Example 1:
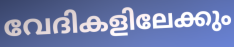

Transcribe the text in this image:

വേദികളിലേക്കും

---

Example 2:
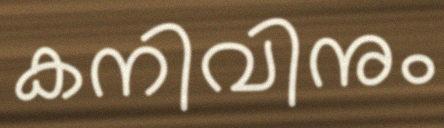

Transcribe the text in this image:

കനിവിനും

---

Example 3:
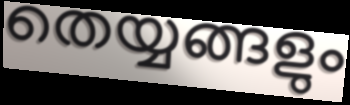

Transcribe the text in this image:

തെയ്യങ്ങളും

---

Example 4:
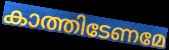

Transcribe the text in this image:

കാത്തിടേണമേ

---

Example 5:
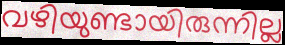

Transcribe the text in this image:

വഴിയുണ്ടായിരുന്നില്ല